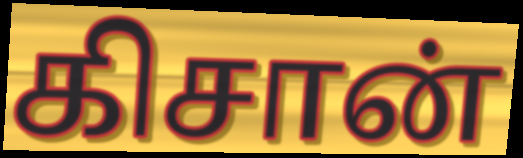
கிசான்